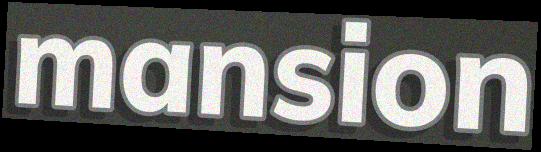
mansion